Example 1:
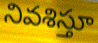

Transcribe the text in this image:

నివశిస్తూ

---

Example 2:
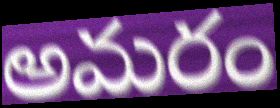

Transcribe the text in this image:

అమరం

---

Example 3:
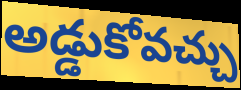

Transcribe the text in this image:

అడ్డుకోవచ్చు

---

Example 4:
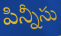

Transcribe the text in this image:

పిన్నీసు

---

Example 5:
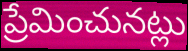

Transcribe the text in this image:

ప్రేమించునట్లు